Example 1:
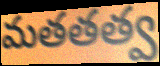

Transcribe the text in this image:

మతతత్వ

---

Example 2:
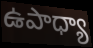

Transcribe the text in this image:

ఉపాధ్యా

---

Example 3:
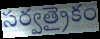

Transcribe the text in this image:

సర్వత్రైకం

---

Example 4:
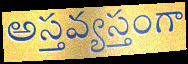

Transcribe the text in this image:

అస్తవ్యస్తంగా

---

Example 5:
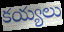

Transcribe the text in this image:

కయ్యలు